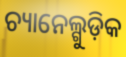
ଚ୍ୟାନେଲ୍ଗୁଡ଼ିକ